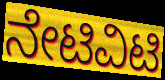
ನೇಟಿವಿಟಿ